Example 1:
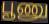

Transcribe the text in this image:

பூணு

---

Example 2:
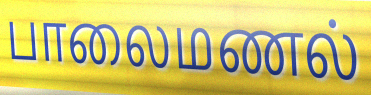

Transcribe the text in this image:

பாலைமணல்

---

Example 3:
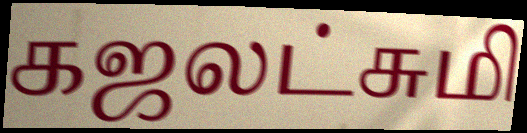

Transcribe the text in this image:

கஜலட்சுமி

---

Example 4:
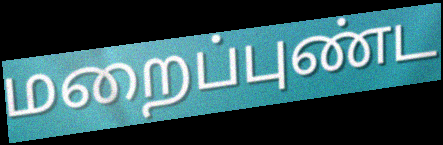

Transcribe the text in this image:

மறைப்புண்ட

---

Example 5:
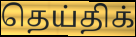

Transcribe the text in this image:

தெய்திக்